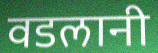
वडलानी